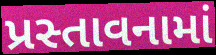
પ્રસ્તાવનામાં